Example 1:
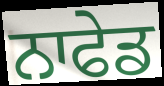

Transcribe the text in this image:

ਨਾਫੇਡ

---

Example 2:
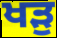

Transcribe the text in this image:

ਖੜੁ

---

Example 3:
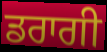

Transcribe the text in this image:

ਡਰਾਗੀ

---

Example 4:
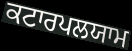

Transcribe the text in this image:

ਕਟਾਰਪਲਯਾਮ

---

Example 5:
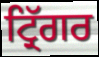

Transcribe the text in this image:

ਟ੍ਰਿੱਗਰ